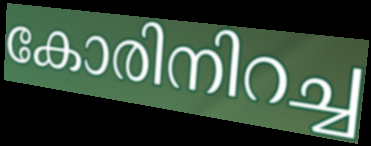
കോരിനിറച്ച